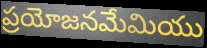
ప్రయోజనమేమియు